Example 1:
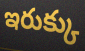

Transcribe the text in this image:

ఇరుక్కు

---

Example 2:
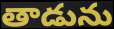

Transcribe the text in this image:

తాడును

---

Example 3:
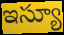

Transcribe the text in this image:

ఇస్యూ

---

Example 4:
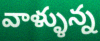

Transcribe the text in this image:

వాళ్ళున్న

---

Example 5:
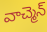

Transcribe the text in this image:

వాచ్మెన్